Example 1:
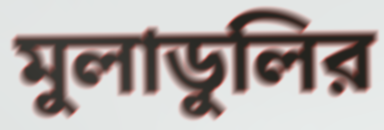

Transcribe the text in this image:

মুলাডুলির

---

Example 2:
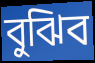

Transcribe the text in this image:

বুঝিব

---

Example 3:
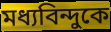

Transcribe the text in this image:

মধ্যবিন্দুকে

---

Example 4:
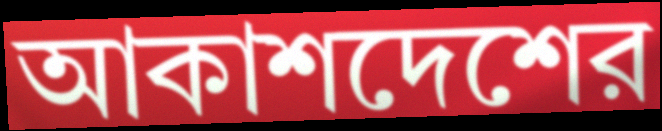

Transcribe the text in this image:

আকাশদেশের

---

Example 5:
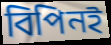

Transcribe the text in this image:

বিপিনই